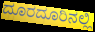
ದೂರದೂರಿನಲ್ಲಿ